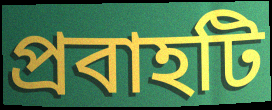
প্রবাহটি